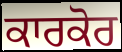
ਕਾਰਕੋਰ